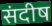
संदीष